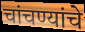
चांचण्यांचे